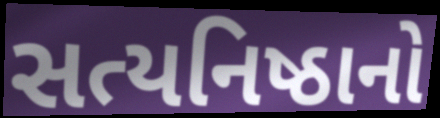
સત્યનિષ્ઠાનો